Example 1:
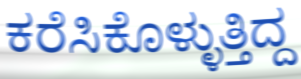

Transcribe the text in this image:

ಕರೆಸಿಕೊಳ್ಳುತ್ತಿದ್ದ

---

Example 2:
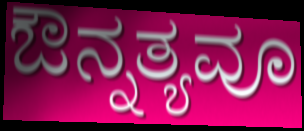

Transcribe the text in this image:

ಔನ್ನತ್ಯವೂ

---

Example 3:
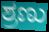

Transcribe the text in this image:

ಶ್ರಣು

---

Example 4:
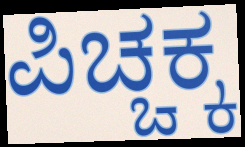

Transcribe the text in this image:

ಪಿಚ್ಚಕ್ಕ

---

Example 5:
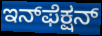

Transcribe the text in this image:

ಇನ್‌ಫೆಕ್ಷನ್